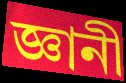
জ্ঞানী